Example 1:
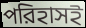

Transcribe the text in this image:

পরিহাসই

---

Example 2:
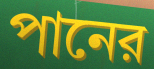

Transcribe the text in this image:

পানের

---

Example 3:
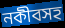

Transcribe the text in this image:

নকীবসহ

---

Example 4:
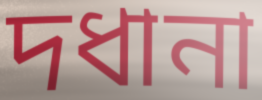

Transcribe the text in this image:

দধানা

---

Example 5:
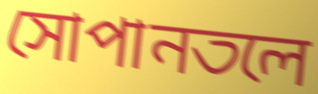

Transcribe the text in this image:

সোপানতলে